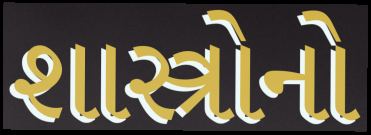
શાસ્ત્રોનો